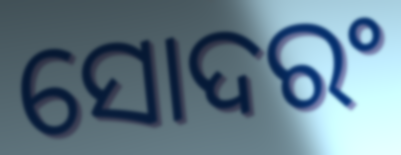
ସୋଦରଂ